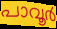
പാവൂർ